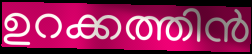
ഉറക്കത്തിൻ